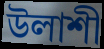
উলাশী